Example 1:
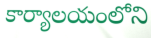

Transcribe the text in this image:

కార్యాలయంలోని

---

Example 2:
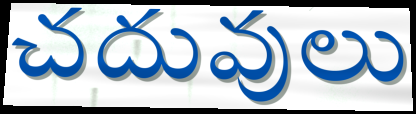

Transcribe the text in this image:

చదువులు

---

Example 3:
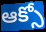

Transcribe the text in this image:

ఆక్సో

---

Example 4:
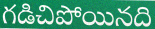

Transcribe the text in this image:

గడిచిపోయినది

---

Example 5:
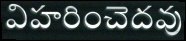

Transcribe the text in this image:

విహరించెదవు